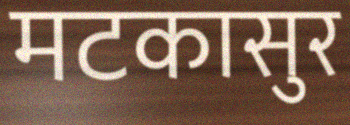
मटकासुर